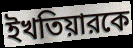
ইখতিয়ারকে